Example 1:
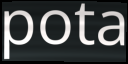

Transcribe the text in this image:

pota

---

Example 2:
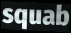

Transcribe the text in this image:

squab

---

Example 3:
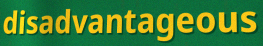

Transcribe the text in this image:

disadvantageous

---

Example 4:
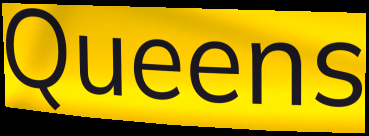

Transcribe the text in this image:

Queens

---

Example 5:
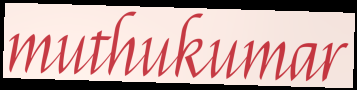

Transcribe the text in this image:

muthukumar